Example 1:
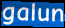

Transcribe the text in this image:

galun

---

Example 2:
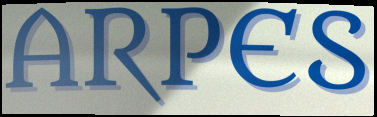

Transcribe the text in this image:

ARPES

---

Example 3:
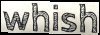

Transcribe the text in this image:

whish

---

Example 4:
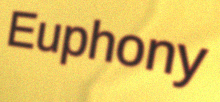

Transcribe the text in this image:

Euphony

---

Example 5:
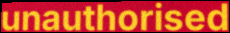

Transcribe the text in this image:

unauthorised